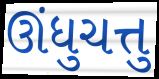
ઊંધુચત્તુ